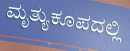
ಮೃತ್ಯುಕೂಪದಲ್ಲಿ